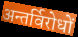
अन्तर्विरोधों